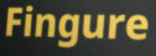
Fingure